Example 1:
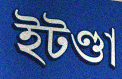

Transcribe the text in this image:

ইটণ্ডা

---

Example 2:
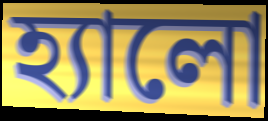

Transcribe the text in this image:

হ্যালো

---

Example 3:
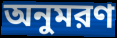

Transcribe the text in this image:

অনুমরণ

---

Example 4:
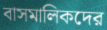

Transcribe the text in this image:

বাসমালিকদের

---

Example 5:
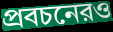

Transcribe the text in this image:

প্রবচনেরও